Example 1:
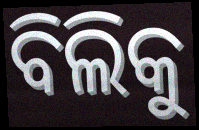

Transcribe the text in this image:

ବିଲିକୁ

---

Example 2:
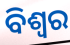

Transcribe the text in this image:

ବିଶ୍ଵର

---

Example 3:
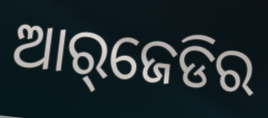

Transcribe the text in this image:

ଆର୍‌ଜେଡିର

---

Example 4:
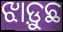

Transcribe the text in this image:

ଝାଡ଼ୁଛ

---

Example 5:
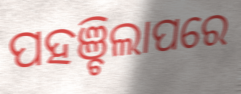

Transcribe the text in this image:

ପହଞ୍ଚିଲାପରେ